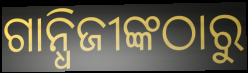
ଗାନ୍ଧିଜୀଙ୍କଠାରୁ